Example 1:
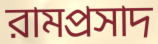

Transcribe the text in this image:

রামপ্রসাদ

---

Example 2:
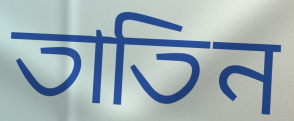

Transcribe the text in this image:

তাতিন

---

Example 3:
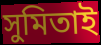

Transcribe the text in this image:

সুমিতাই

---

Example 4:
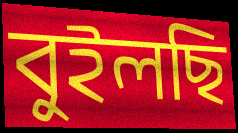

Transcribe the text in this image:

বুইলছি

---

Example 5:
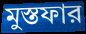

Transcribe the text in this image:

মুস্তফার